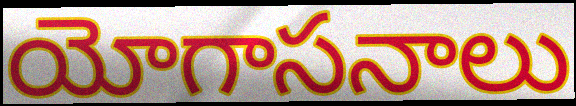
యోగాసనాలు